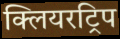
क्लियरट्रिप